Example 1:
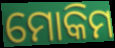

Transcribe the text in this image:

ମୋକିମ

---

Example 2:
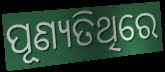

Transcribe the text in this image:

ପୂଣ୍ୟତିଥିରେ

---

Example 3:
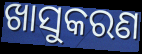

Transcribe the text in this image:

ଖାସୁକରଣ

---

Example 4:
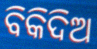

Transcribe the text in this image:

ବିକିଦିଅ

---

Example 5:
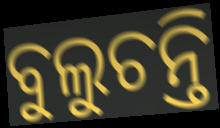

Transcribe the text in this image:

ବୁଲୁଚନ୍ତି